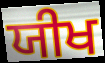
ਯੀਖ